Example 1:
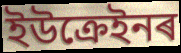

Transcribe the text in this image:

ইউক্ৰেইনৰ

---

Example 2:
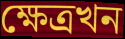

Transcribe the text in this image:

ক্ষেত্ৰখন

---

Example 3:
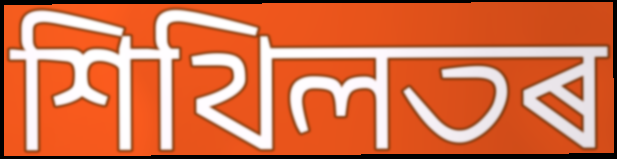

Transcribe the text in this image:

শিথিলতৰ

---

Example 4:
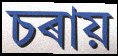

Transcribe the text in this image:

চৰায়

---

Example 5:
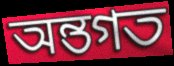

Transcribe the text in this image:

অন্তগত